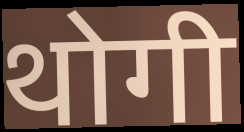
थोगी